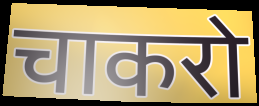
चाकरो